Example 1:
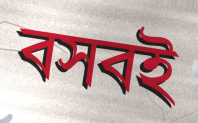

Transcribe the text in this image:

বসবই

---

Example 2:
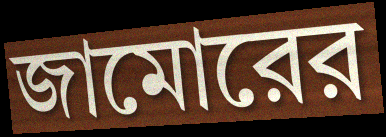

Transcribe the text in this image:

জামোরের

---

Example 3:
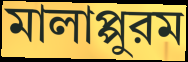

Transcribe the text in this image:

মালাপ্পুরম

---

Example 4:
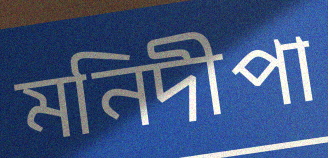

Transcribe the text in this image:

মনিদীপা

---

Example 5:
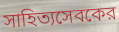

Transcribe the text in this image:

সাহিত্যসেবকের